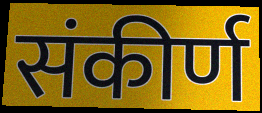
संकीर्ण